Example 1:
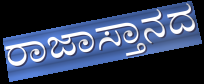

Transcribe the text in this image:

ರಾಜಾಸ್ತಾನದ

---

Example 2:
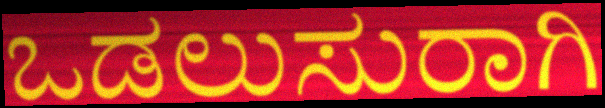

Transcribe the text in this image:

ಒಡಲುಸುರಾಗಿ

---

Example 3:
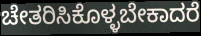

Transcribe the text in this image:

ಚೇತರಿಸಿಕೊಳ್ಳಬೇಕಾದರೆ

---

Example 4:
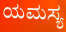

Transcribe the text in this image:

ಯಮಸ್ಯ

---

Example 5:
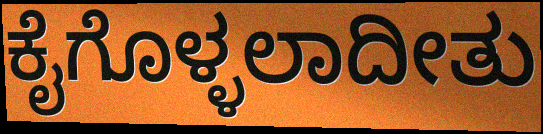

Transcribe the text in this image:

ಕೈಗೊಳ್ಳಲಾದೀತು